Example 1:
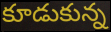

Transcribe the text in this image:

కూడుకున్న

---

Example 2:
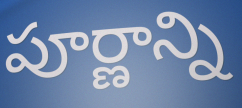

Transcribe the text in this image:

పూర్ణాన్ని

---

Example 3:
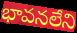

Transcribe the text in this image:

భావనలేని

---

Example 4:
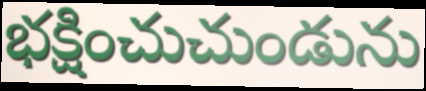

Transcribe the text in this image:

భక్షించుచుండును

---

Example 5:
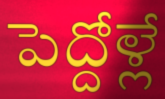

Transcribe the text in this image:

పెద్దోళ్లే